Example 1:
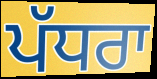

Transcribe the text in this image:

ਪੱਧਰਾ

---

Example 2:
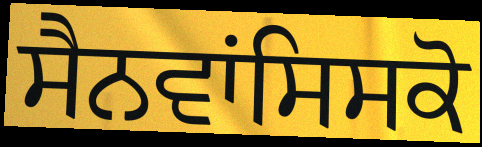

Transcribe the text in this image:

ਸੈਨਵਾਂਸਿਸਕੋ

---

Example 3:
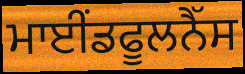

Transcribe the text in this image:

ਮਾਈਂਡਫੂਲਨੈੱਸ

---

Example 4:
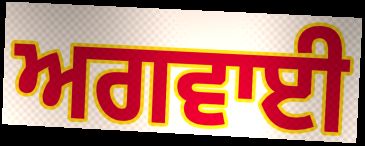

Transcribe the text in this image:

ਅਗਵਾਈ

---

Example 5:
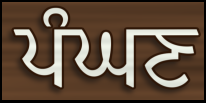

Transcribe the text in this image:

ਪੰਘਣ